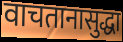
वाचतानासुद्धा